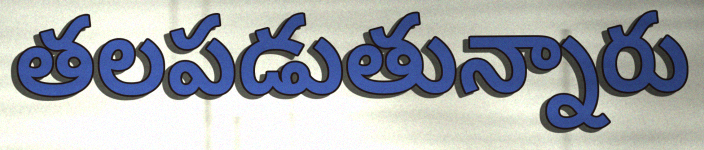
తలపడుతున్నారు